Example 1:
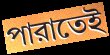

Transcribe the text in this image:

পারাতেই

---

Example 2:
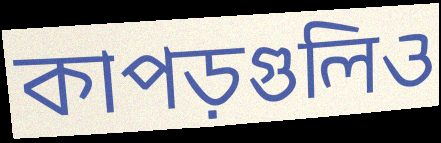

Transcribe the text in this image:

কাপড়গুলিও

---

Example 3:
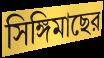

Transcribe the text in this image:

সিঙ্গিমাছের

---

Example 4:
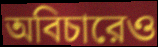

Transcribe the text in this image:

অবিচারেও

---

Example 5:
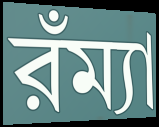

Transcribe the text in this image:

রঁম্যা